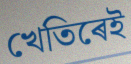
খেতিৰেই